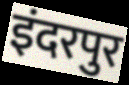
इंदरपुर